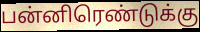
பன்னிரெண்டுக்கு